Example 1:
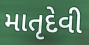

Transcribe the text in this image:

માતૃદેવી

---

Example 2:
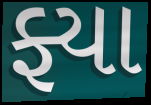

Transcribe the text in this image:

ફ્યા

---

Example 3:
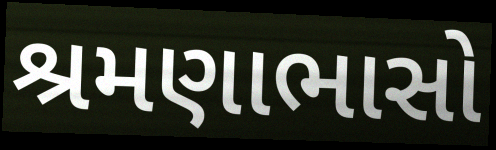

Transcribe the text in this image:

શ્રમણાભાસો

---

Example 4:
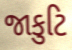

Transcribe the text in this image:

જાકુટિ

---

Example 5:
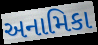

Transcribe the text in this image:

અનામિકા